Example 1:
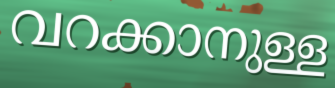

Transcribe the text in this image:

വറക്കാനുള്ള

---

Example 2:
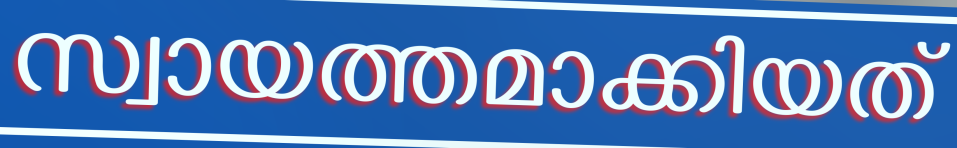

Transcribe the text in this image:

സ്വായത്തമാക്കിയത്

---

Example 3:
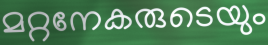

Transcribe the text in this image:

മറ്റനേകരുടെയും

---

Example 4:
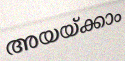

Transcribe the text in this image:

അയയ്ക്കാം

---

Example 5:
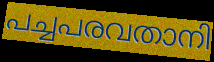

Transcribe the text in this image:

പച്ചപരവതാനി